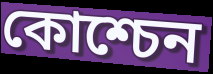
কোশ্চেন